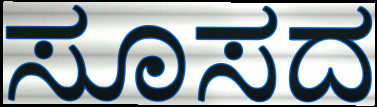
ಸೂಸದ